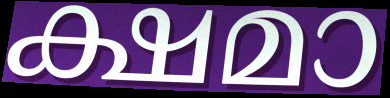
ക്ഷമാ